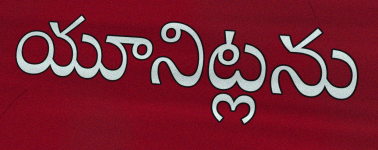
యూనిట్లను